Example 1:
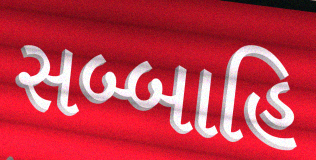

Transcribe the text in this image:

સબ્બાહિ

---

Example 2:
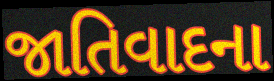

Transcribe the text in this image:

જાતિવાદના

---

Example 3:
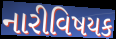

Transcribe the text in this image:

નારીવિષયક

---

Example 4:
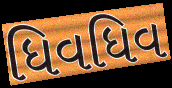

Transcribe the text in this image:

ધિવધિવ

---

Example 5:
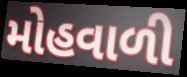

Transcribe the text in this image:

મોહવાળી